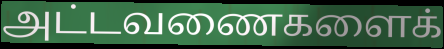
அட்டவணைகளைக்